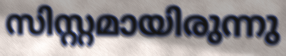
സിസ്റ്റമായിരുന്നു